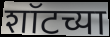
शॉटच्या